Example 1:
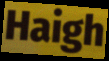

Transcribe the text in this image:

Haigh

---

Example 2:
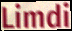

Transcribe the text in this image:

Limdi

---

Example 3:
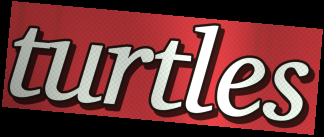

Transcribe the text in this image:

turtles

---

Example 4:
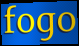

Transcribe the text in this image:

fogo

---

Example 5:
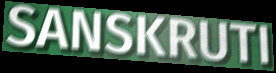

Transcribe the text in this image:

SANSKRUTI